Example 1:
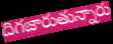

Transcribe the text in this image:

దిగజారుతున్నారు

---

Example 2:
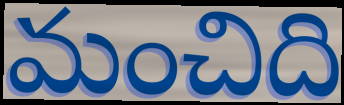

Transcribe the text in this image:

మంచిది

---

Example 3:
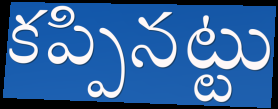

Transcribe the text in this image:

కప్పినట్టు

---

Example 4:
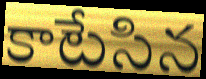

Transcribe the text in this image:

కాటేసిన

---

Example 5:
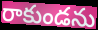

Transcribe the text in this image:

రాకుండను